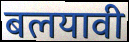
बलयावी